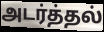
அடர்த்தல்